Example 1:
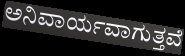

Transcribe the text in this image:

ಅನಿವಾರ್ಯವಾಗುತ್ತವೆ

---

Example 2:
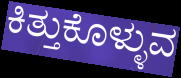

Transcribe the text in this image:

ಕಿತ್ತುಕೊಳ್ಳುವ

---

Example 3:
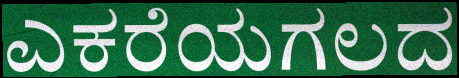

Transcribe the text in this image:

ಎಕರೆಯಗಲದ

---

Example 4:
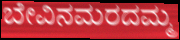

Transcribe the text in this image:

ಬೇವಿನಮರದಮ್ಮ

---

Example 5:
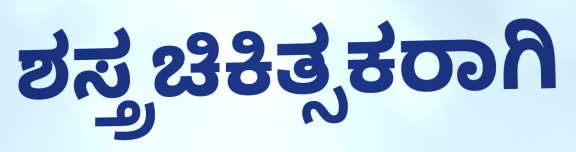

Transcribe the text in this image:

ಶಸ್ತ್ರಚಿಕಿತ್ಸಕರಾಗಿ